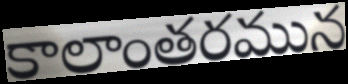
కాలాంతరమున